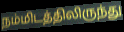
நம்மிடத்திலிருந்து